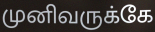
முனிவருக்கே